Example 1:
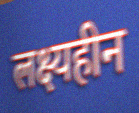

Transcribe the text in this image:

लक्ष्यहीन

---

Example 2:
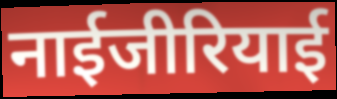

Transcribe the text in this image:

नाईजीरियाई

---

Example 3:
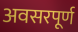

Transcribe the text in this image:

अवसरपूर्ण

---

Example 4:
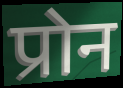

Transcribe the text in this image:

प्रोन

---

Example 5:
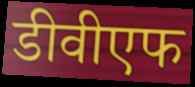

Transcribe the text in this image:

डीवीएफ